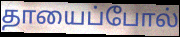
தாயைப்போல்